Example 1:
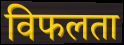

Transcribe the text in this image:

विफलता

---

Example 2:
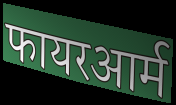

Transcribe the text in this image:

फायरआर्म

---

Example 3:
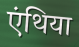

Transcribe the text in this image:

एंथिया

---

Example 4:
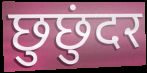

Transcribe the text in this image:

छुछुंदर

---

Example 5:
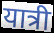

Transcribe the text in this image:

यात्री